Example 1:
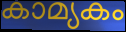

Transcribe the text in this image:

കാമ്യകം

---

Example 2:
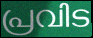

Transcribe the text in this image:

പ്രവിട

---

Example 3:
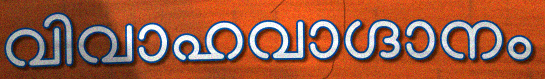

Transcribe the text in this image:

വിവാഹവാഗ്ദാനം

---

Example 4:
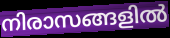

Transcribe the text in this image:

നിരാസങ്ങളിൽ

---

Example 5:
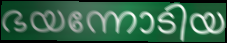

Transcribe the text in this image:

ഭയന്നോടിയ